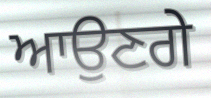
ਆਉਣਗੇ